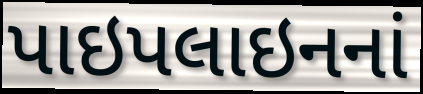
પાઇપલાઇનનાં